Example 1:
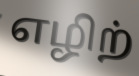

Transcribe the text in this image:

எழிற்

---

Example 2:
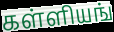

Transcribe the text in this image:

கள்ளியங்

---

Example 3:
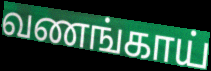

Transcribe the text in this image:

வணங்காய்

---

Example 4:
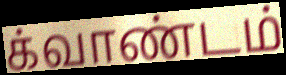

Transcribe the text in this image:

க்வாண்டம்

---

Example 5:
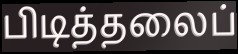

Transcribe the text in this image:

பிடித்தலைப்